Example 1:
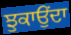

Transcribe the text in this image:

ਝੁਕਾਉਂਦਾ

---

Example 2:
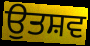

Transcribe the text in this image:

ਉਤਸ਼ਵ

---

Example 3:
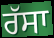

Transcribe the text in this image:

ਰੱਸਾ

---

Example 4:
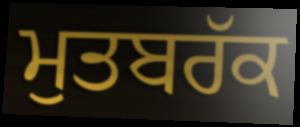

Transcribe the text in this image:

ਮੁਤਬਰੱਕ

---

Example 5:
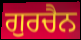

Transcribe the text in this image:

ਗੁਰਚੈਨ